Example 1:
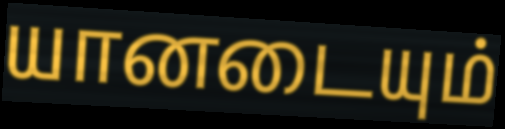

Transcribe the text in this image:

யானடையும்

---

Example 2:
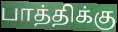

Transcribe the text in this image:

பாத்திக்கு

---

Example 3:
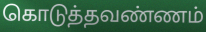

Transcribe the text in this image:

கொடுத்தவண்ணம்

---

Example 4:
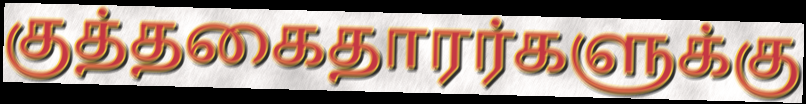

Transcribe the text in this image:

குத்தகைதாரர்களுக்கு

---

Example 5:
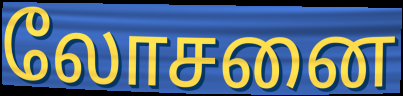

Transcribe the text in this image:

லோசனை